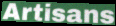
Artisans